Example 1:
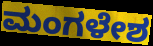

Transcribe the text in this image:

ಮಂಗಳೇಶ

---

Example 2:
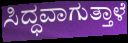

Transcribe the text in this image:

ಸಿದ್ಧವಾಗುತ್ತಾಳೆ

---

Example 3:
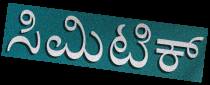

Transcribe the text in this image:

ಸಿಮಿಟಿಕ್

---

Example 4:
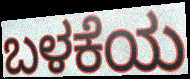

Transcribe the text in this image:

ಬಳಕೆಯ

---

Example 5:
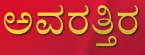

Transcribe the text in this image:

ಅವರತ್ತಿರ